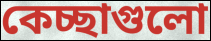
কেচ্ছাগুলো